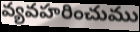
వ్యవహరించుము